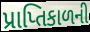
પ્રાપ્તિકાળની